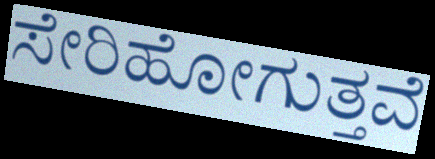
ಸೇರಿಹೋಗುತ್ತವೆ